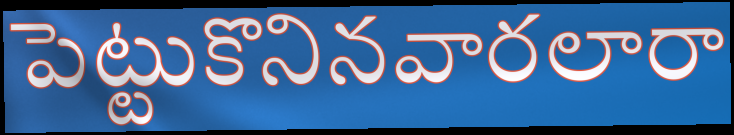
పెట్టుకొనినవారలారా